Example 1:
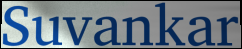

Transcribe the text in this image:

Suvankar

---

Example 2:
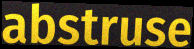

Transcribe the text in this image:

abstruse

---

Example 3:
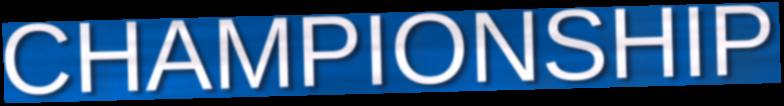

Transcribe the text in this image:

CHAMPIONSHIP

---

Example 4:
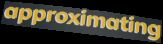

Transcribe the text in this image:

approximating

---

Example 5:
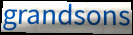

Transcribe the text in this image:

grandsons